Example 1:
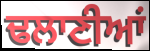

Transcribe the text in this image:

ਢਲਾਣੀਆਂ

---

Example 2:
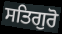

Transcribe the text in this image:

ਸਤਿਗੁਰੋ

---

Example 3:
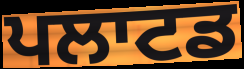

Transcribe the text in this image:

ਪਲਾਟਡ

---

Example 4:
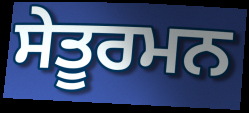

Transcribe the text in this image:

ਸੇਤੂਰਮਨ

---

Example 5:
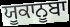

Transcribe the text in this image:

ਯੂਕਾਨੂਬਾ